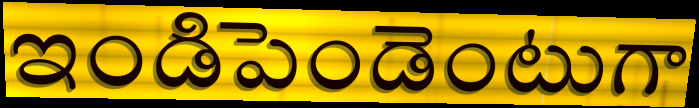
ఇండిపెండెంటుగా